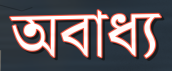
অবাধ্য